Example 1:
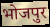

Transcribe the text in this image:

भोजपुर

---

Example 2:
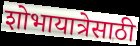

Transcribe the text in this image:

शोभायात्रेसाठी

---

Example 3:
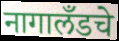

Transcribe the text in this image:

नागालँडचे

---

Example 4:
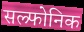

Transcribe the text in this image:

सल्फोनिक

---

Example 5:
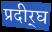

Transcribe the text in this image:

प्रदीर्घ